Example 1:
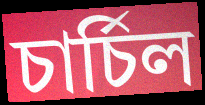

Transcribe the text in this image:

চার্চিল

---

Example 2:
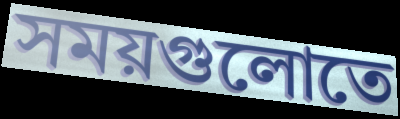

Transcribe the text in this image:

সময়গুলোতে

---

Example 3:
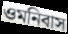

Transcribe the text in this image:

ওমনিবাস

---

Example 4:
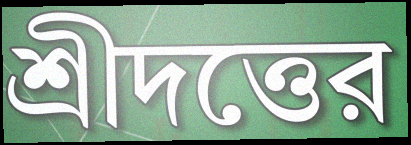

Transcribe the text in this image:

শ্রীদত্তের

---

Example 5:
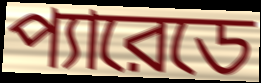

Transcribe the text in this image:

প্যারেডে